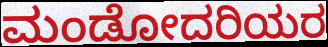
ಮಂಡೋದರಿಯರ